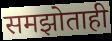
समझोताही